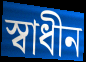
স্ৱাধীন